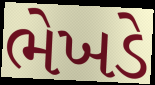
ભેખડે